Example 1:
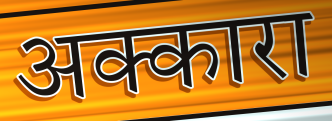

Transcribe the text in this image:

अक्कारा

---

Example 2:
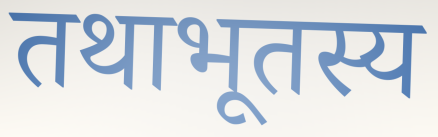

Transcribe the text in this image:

तथाभूतस्य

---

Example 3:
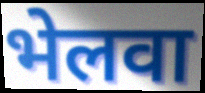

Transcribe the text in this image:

भेलवा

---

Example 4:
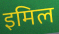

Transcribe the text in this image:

इमिल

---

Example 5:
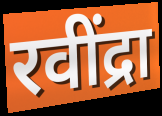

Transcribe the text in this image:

रवींद्रा